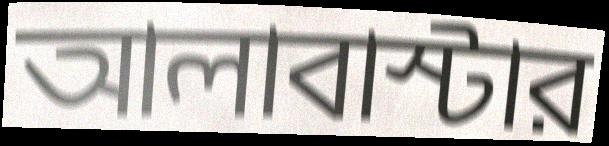
আলাবাস্টার